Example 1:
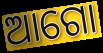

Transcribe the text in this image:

ଆଗୋ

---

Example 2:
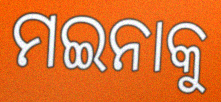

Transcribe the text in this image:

ମଇନାକୁ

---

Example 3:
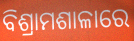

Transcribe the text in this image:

ବିଶ୍ରାମଶାଳାରେ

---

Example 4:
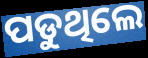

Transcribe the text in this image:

ପଡୁଥିଲେ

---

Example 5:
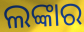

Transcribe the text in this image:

ଲଙ୍କାର